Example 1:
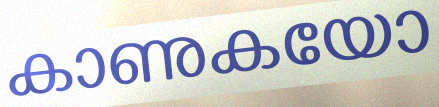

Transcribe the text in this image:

കാണുകയോ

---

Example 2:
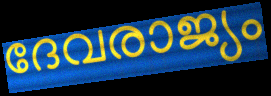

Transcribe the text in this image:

ദേവരാജ്യം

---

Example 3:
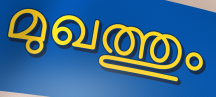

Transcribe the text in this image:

മുഖത്തും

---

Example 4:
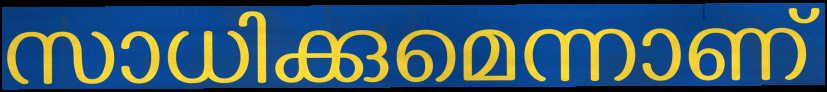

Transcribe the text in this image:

സാധിക്കുമെന്നാണ്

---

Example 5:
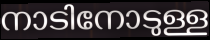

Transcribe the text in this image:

നാടിനോടുള്ള